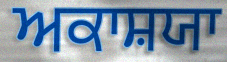
ਅਕਾਸ਼ਯਾ